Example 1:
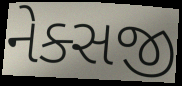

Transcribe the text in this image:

નેક્સજી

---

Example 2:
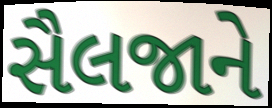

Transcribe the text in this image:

સૈલજાને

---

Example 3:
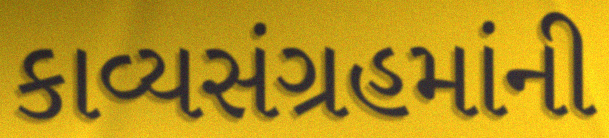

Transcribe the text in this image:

કાવ્યસંગ્રહમાંની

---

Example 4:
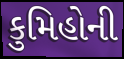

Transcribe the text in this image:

કુમિહોની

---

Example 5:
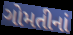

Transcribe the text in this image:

ગોમતીનાં